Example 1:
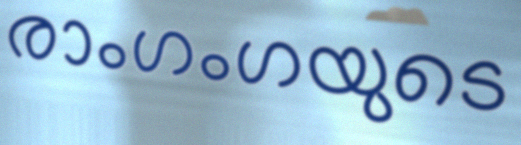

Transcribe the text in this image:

രാംഗംഗയുടെ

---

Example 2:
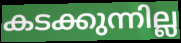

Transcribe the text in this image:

കടക്കുന്നില്ല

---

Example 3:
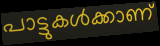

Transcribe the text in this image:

പാട്ടുകൾക്കാണ്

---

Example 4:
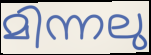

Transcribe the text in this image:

മിന്നലു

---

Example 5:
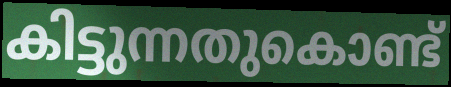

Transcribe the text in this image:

കിട്ടുന്നതുകൊണ്ട്